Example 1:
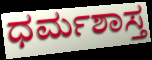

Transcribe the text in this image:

ಧರ್ಮಶಾಸ್ತ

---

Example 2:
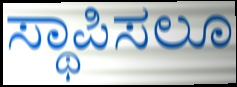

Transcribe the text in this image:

ಸ್ಥಾಪಿಸಲೂ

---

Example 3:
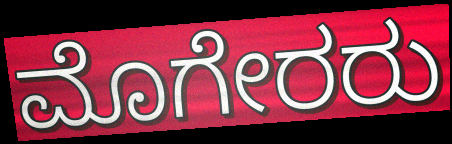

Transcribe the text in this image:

ಮೊಗೇರರು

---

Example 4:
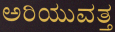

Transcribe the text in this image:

ಅರಿಯುವತ್ತ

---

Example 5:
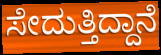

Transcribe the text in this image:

ಸೇದುತ್ತಿದ್ದಾನೆ